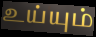
உய்யும்